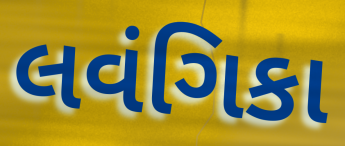
લવંગિકા